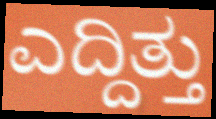
ಎದ್ದಿತ್ತು